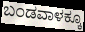
ಬಂಡವಾಳಕ್ಕೂ